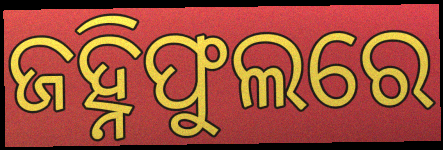
ଜହ୍ନିଫୁଲରେ